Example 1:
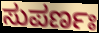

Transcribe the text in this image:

ಸುಪರ್ಣಃ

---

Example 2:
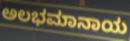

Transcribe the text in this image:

ಅಲಭಮಾನಾಯ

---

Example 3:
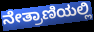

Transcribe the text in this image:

ನೇತ್ರಾಣಿಯಲ್ಲಿ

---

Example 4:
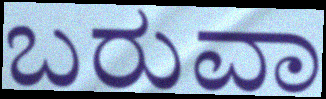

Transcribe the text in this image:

ಬರುವಾ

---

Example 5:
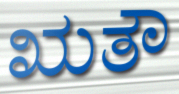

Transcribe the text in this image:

ಋತೌ